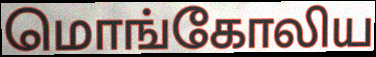
மொங்கோலிய